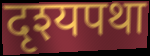
दृश्यपथा